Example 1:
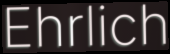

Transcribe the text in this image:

Ehrlich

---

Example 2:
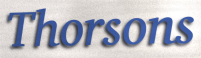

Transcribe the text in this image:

Thorsons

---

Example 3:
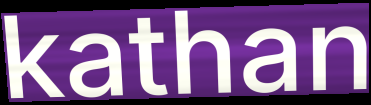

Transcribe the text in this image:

kathan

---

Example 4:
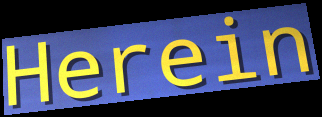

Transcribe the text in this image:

Herein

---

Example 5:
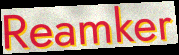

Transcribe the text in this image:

Reamker